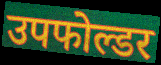
उपफोल्डर